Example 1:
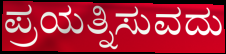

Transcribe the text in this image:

ಪ್ರಯತ್ನಿಸುವದು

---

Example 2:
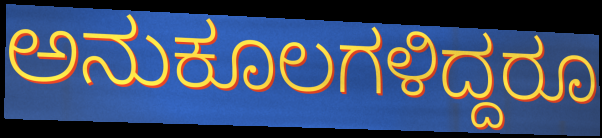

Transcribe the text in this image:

ಅನುಕೂಲಗಳಿದ್ದರೂ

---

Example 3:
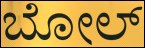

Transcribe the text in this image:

ಬೋಲ್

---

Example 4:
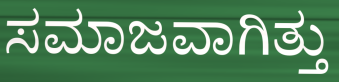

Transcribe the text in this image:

ಸಮಾಜವಾಗಿತ್ತು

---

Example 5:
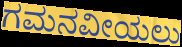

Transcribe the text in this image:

ಗಮನವೀಯಲು